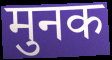
मुनक